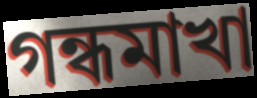
গন্ধমাখা